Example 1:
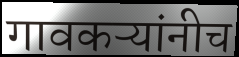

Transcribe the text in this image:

गावकऱ्यांनीच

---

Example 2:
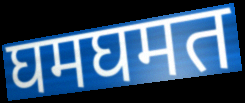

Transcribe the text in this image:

घमघमत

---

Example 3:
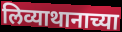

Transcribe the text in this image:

लिव्याथानाच्या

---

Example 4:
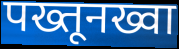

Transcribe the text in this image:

पख्तूनख्वा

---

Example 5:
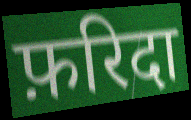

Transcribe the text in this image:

फ़रिदा